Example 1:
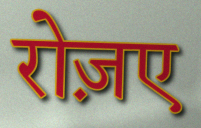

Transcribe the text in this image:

रोज़ए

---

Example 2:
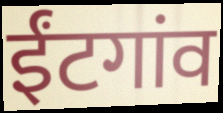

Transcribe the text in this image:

ईंटगांव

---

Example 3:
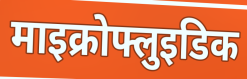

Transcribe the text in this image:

माइक्रोफ्लुइडिक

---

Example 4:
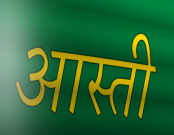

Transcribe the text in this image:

आस्ती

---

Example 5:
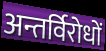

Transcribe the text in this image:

अन्तर्विरोधों